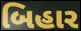
બિહાર